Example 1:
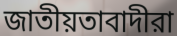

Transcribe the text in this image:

জাতীয়তাবাদীরা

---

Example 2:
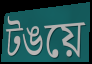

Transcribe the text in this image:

টঙয়ে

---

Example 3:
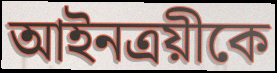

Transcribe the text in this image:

আইনত্রয়ীকে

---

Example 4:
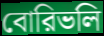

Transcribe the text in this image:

বোরিভলি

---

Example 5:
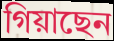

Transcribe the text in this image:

গিয়াছেন